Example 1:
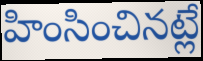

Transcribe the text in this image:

హింసించినట్లే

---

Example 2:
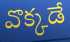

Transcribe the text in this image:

వొక్కడే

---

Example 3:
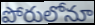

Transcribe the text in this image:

పోరులోనూ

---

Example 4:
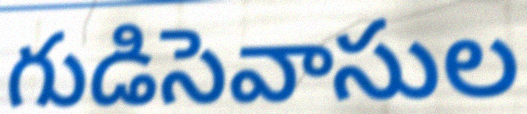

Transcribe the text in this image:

గుడిసెవాసుల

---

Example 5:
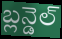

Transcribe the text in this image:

బ్లన్డెల్